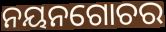
ନୟନଗୋଚର